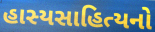
હાસ્યસાહિત્યનો